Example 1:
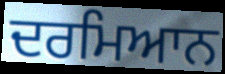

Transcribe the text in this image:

ਦਰਮਿਆਨ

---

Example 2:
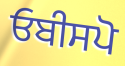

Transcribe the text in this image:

ਓਬੀਸਪੋ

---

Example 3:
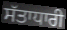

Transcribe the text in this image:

ਸੱਤਾਧਾਰੀ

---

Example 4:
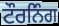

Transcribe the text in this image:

ਟੌਰਨਿੰਗ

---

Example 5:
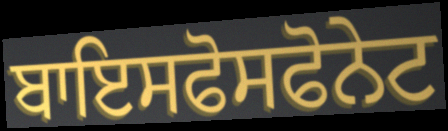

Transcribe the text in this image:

ਬਾਇਸਫੋਸਫੋਨੇਟ